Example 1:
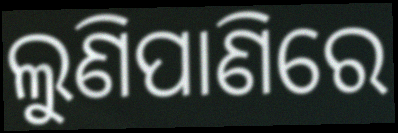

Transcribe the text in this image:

ଲୁଣିପାଣିରେ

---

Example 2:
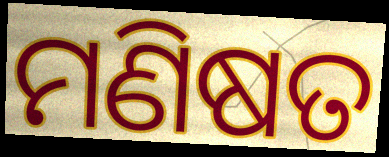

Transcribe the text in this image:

ମଣିଷତ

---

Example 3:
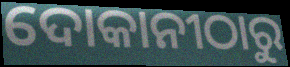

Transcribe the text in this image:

ଦୋକାନୀଠାରୁ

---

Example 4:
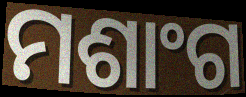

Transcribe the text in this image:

ମଶାଂଗ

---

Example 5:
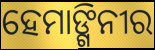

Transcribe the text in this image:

ହେମାଙ୍ଗିନୀର